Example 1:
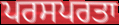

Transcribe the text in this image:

ਪਰਸਪਰਤਾ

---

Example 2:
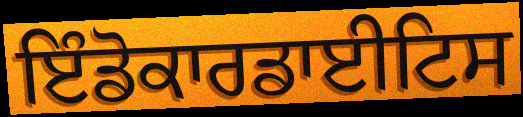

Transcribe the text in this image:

ਇੰਡੋਕਾਰਡਾਈਟਿਸ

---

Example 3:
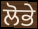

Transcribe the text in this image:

ਲੋਭੇ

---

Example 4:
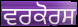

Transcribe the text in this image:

ਵਰਕੋਰਸ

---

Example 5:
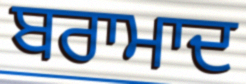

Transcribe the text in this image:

ਬਰਾਮਾਦ